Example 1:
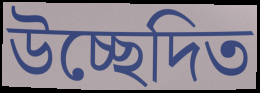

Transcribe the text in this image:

উচ্ছেদিত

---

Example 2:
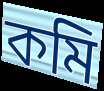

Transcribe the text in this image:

কমি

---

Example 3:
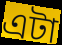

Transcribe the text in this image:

এটা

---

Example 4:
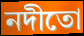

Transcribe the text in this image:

নদীতো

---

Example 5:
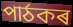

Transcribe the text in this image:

পাঠকৰ